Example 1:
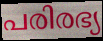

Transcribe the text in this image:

പരിരഭ്യ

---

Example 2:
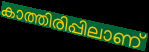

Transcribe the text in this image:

കാത്തിരിപ്പിലാണ്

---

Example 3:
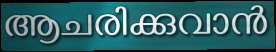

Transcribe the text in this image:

ആചരിക്കുവാൻ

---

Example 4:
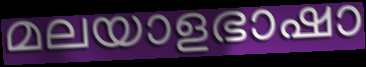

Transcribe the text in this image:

മലയാളഭാഷാ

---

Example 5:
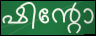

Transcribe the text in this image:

ഷിന്റോ